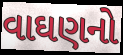
વાઘણનો